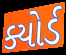
ક્યોર્ડ